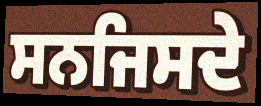
ਸਨਜਿਸਦੇ